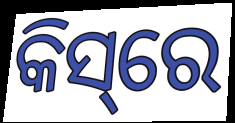
କିସ୍‌ରେ